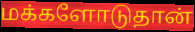
மக்களோடுதான்